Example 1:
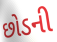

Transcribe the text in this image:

છોડની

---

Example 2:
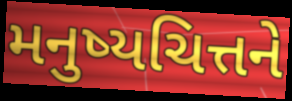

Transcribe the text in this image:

મનુષ્યચિત્તને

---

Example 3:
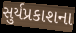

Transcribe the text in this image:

સુર્યપ્રકાશના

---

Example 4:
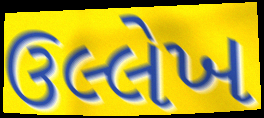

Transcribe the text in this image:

ઉલ્લેખ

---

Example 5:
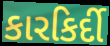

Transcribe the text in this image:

કારકિર્દી